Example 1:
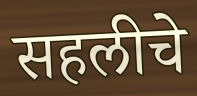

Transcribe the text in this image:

सहलीचे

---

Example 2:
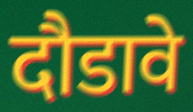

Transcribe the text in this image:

दौडावे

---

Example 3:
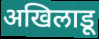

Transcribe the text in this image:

अखिलाडू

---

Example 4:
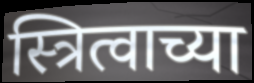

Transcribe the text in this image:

स्त्रित्वाच्या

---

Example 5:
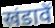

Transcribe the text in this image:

खंडावें